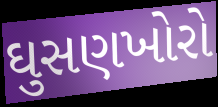
ઘુસણખોરો